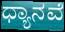
ಧ್ಯಾನವೆ